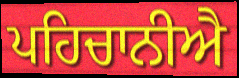
ਪਹਿਚਾਨੀਐ